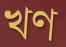
খণ